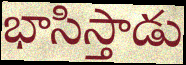
భాసిస్తాడు